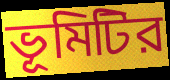
ভূমিটির